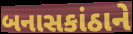
બનાસકાંઠાને